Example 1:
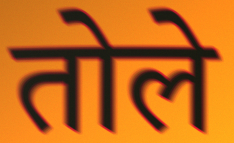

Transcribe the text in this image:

तोले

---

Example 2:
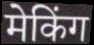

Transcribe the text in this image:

मेकिंग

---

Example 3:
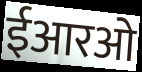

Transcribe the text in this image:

ईआरओ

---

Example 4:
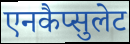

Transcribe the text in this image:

एनकैप्सुलेट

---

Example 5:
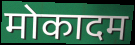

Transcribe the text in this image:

मोकादम